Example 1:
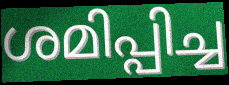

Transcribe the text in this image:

ശമിപ്പിച്ച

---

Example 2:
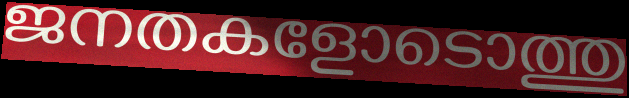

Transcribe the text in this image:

ജനതകളോടൊത്തു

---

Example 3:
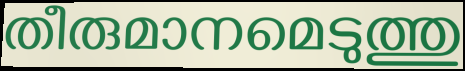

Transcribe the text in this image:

തീരുമാനമെടുത്തു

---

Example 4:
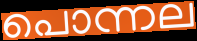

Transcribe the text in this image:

പൊന്നല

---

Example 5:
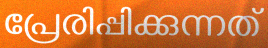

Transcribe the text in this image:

പ്രേരിപ്പിക്കുന്നത്